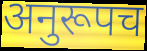
अनुरूपच